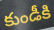
కుండీకి